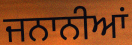
ਜਨਾਨੀਆਂ